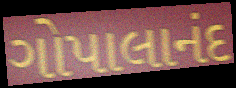
ગોપાલાનંદ